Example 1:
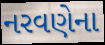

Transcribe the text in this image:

નરવણેના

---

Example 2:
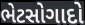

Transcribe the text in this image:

ભેટસોગાદો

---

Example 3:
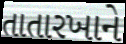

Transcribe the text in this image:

તાતારખાને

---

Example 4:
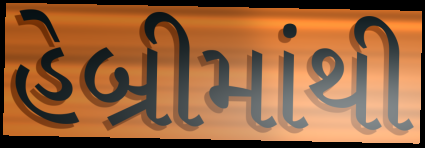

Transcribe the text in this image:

હેબ્રીમાંથી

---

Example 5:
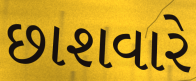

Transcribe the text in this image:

છાશવારે